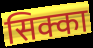
सिक्का